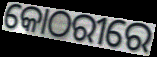
କୋଠରୀରେ